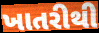
ખાતરીથી